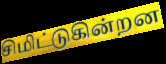
சிமிட்டுகின்றன